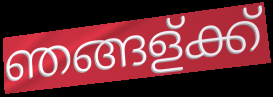
ഞങ്ങള്ക്ക്